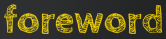
foreword